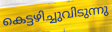
കെട്ടഴിച്ചുവിടുന്നു